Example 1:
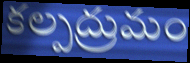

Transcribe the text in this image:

కల్పద్రుమం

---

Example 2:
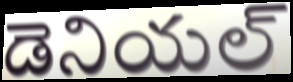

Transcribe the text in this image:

డెనియల్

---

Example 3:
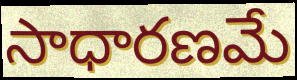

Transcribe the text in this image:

సాధారణమే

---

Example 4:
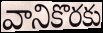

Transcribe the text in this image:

వానికొరకు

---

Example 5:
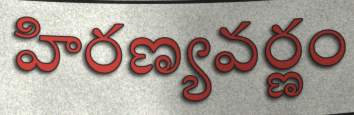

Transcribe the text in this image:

హిరణ్యవర్ణం